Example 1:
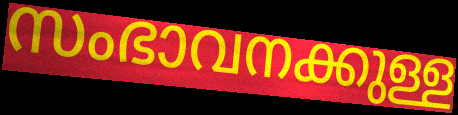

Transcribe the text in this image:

സംഭാവനക്കുള്ള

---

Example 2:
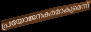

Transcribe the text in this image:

പ്രയോജനകരമാകുമെന്ന്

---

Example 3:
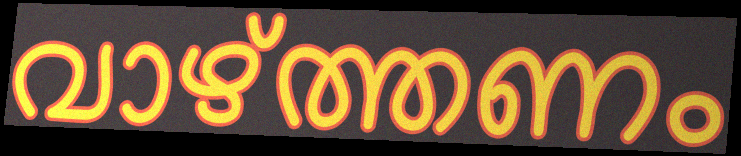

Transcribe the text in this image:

വാഴ്ത്തണം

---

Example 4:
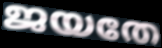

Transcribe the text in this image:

ജയതേ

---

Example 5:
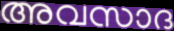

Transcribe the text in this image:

അവസാദ